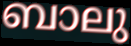
ബാലു